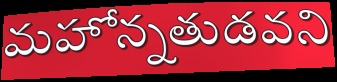
మహోన్నతుడవని